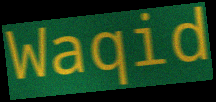
Waqid